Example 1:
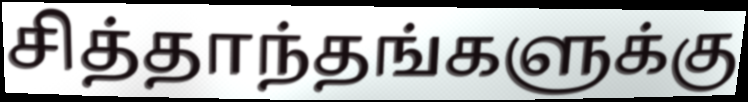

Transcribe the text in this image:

சித்தாந்தங்களுக்கு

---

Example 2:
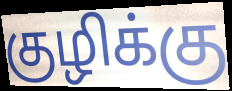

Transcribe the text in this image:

குழிக்கு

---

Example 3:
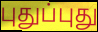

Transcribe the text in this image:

புதுப்புது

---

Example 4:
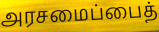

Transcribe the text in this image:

அரசமைப்பைத்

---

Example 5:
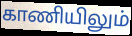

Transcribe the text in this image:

காணியிலும்